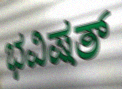
ಭವಿಷತ್